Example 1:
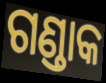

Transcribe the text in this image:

ଗଣ୍ଡାକ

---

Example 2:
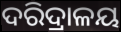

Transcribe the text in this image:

ଦରିଦ୍ରାଳୟ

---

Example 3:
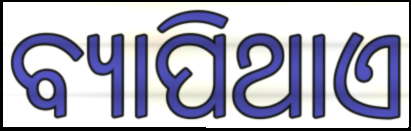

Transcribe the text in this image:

ବ୍ୟାପିଥାଏ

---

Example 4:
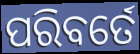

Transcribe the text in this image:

ପରିବର୍ତେ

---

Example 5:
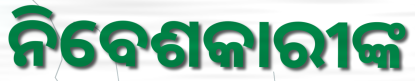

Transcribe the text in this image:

ନିବେଶକାରୀଙ୍କ